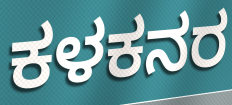
ಕಳಕನರ